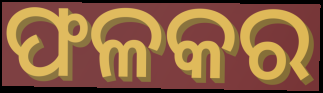
ଫଳକର